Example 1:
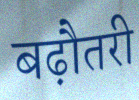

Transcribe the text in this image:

बढ़ौतरी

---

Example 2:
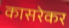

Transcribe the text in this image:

कासरेकर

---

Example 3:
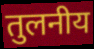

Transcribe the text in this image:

तुलनीय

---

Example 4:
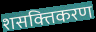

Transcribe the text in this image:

शसक्तिकरण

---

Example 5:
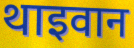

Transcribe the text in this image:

थाइवान